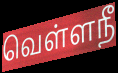
வெள்ளநீ